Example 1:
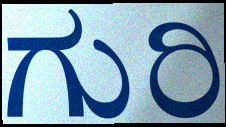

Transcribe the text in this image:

ಗುರಿ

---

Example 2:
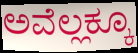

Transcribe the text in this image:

ಅವೆಲ್ಲಕ್ಕೂ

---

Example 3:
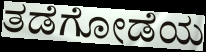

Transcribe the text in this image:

ತಡೆಗೋಡೆಯ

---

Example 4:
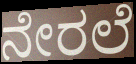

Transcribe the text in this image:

ನೇರಲೆ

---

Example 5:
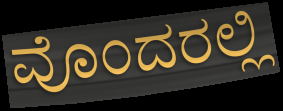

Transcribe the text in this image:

ವೊಂದರಲ್ಲಿ